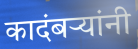
कादंबऱ्यांनी